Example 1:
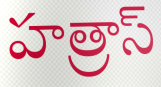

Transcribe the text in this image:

హత్రాస్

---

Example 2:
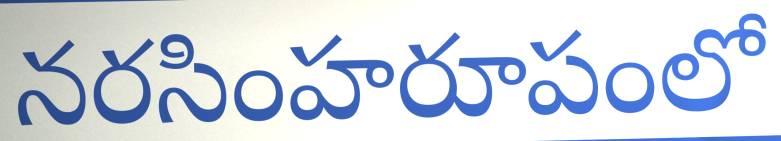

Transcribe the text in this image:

నరసింహరూపంలో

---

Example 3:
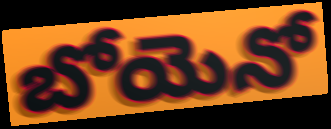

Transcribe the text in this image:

బోయెనో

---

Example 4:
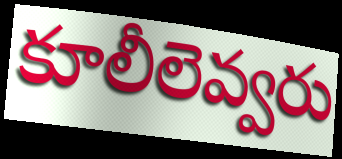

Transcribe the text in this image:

కూలీలెవ్వరు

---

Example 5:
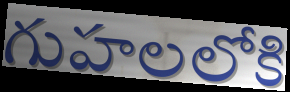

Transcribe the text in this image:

గుహలలోకి